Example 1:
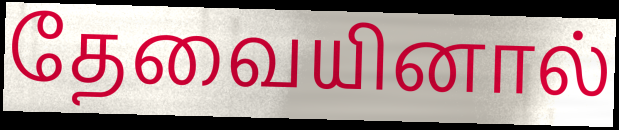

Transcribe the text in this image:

தேவையினால்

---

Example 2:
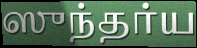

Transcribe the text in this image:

ஸுந்தர்ய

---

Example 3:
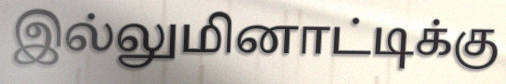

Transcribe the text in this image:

இல்லுமினாட்டிக்கு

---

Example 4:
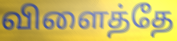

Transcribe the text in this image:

விளைத்தே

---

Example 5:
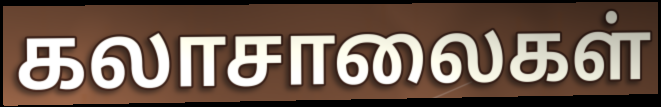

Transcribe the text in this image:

கலாசாலைகள்